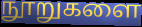
நூறுகளை